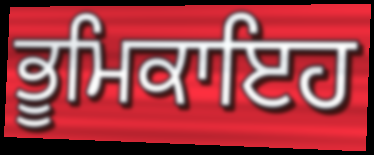
ਭੂਮਿਕਾਇਹ